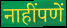
नाहींपणें